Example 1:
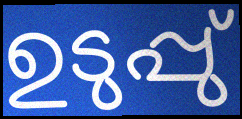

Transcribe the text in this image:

ഉടുപ്പു്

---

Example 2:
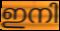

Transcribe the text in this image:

ഇനി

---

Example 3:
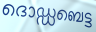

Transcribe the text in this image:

ദൊഡ്ഡബെട്ട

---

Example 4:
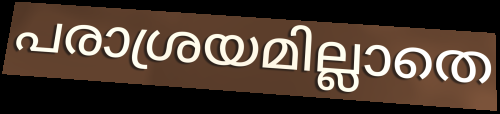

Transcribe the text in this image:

പരാശ്രയമില്ലാതെ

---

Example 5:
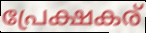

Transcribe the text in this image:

പ്രേക്ഷകര്